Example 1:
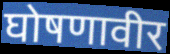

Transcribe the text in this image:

घोषणावीर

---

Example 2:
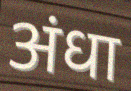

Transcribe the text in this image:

अंधा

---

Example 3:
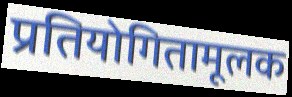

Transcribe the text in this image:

प्रतियोगितामूलक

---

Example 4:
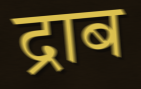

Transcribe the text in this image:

द्राब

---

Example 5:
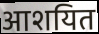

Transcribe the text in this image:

आशयित